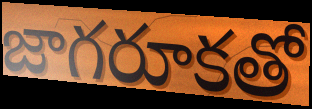
జాగరూకతో